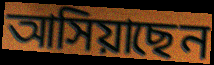
আসিয়াছেন